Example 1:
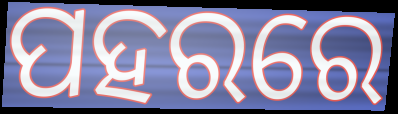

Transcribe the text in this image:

ପହରରେ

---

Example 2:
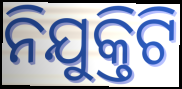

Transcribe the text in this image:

ନିଯୁକ୍ତିଟି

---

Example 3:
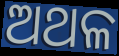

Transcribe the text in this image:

ଅଥଳ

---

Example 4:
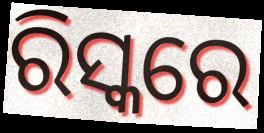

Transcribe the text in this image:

ରିସ୍କରେ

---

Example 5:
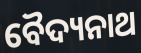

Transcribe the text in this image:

ବୈଦ୍ୟନାଥ